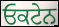
ਓਕਟੇਨ